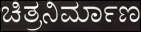
ಚಿತ್ರನಿರ್ಮಾಣ